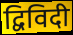
द्विविदी